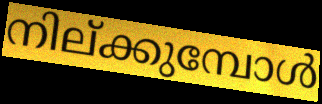
നില്ക്കുമ്പോൾ